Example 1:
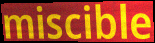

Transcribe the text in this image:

miscible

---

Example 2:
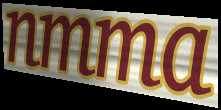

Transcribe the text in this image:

nmma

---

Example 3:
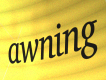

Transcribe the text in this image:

awning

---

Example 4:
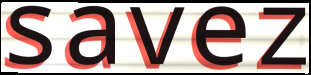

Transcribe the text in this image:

savez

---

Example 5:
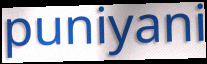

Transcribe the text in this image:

puniyani